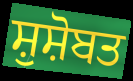
ਸ਼ੁਸ਼ੋਬਤ